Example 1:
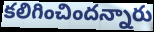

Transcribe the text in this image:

కలిగించిందన్నారు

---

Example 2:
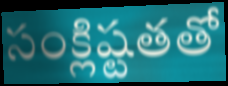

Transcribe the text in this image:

సంక్లిష్టతతో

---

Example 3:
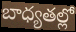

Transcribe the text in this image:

బాధ్యతల్లో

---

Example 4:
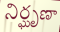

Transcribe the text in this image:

నిర్ఘృణా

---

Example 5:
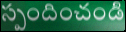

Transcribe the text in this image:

స్పందించండి